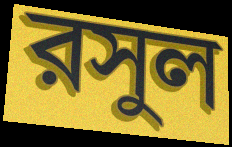
রসুল